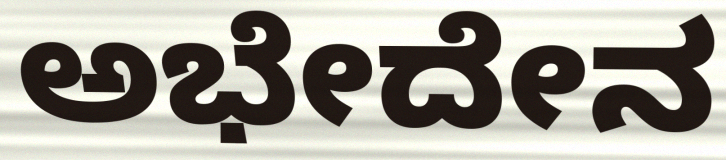
ಅಭೇದೇನ